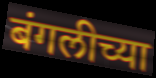
बंगलीच्या